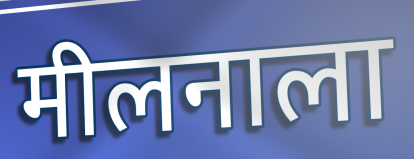
मीलनाला